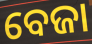
ବେଜା